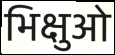
भिक्षुओ